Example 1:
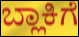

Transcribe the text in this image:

ಬ್ಲಾಕಿಗೆ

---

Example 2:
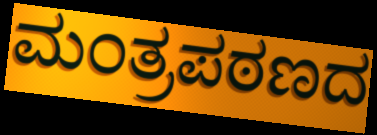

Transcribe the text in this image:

ಮಂತ್ರಪಠಣದ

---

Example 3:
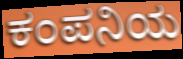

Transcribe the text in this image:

ಕಂಪನಿಯ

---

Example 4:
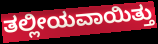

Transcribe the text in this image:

ತಲ್ಲೀಯವಾಯಿತ್ತು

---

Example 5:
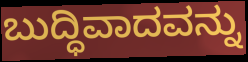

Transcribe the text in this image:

ಬುದ್ಧಿವಾದವನ್ನು